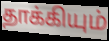
தாக்கியும்